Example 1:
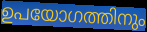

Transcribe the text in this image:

ഉപയോഗത്തിനും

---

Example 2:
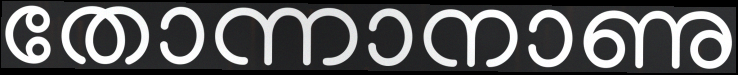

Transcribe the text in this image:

തോന്നാനാണു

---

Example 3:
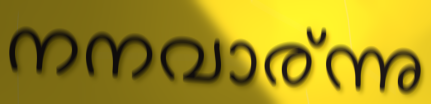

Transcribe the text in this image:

നനവാര്ന്നു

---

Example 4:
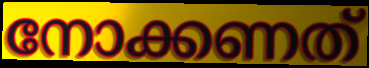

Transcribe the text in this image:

നോക്കണത്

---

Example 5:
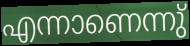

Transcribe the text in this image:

എന്നാണെന്നു്